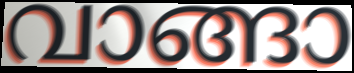
വാങ്ങാ